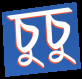
চুচু